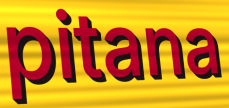
pitana